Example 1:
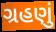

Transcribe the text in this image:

ગ્રહણું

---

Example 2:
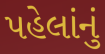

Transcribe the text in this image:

પહેલાંનું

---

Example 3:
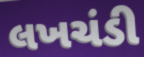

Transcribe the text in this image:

લખચંડી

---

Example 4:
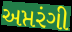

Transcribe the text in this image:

અપ્તરંગી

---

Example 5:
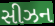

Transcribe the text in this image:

સીઝન